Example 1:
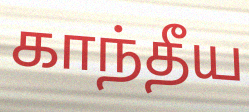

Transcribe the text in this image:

காந்தீய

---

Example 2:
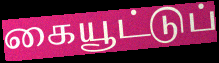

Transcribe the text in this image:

கையூட்டுப்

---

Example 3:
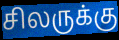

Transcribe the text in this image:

சிலருக்கு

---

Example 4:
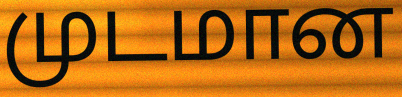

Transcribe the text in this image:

முடமான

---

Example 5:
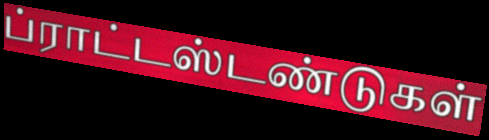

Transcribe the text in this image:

ப்ராட்டஸ்டண்டுகள்